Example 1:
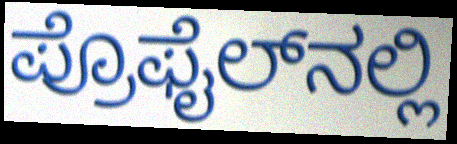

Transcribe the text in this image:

ಪ್ರೊಫೈಲ್‌ನಲ್ಲಿ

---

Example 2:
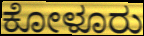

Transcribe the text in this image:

ಕೋಳೂರು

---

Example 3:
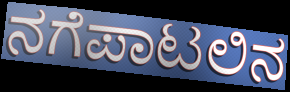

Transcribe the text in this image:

ನಗೆಪಾಟಲಿನ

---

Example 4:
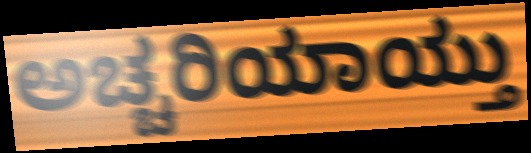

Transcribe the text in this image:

ಅಚ್ಚರಿಯಾಯ್ತು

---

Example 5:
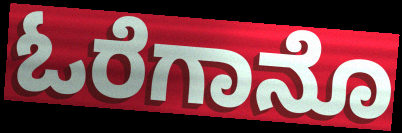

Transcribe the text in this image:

ಓರೆಗಾನೊ